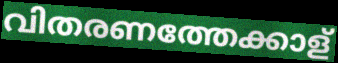
വിതരണത്തേക്കാള്